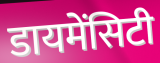
डायमेंसिटी